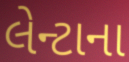
લેન્ટાના